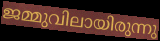
ജമ്മുവിലായിരുന്നു